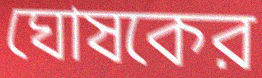
ঘোষকের